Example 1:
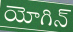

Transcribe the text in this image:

యోగిన్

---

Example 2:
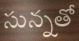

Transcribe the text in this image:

సున్నతో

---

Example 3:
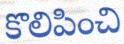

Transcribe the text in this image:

కొలిపించి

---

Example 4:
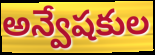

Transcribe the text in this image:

అన్వేషకుల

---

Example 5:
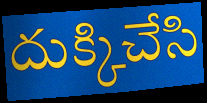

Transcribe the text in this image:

దుక్కిచేసి